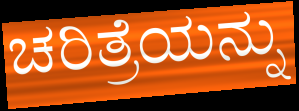
ಚರಿತ್ರೆಯನ್ನು